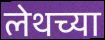
लेथच्या